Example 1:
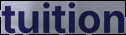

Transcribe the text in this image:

tuition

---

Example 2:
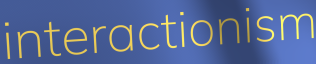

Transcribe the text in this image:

interactionism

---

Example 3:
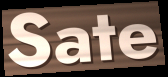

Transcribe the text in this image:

Sate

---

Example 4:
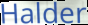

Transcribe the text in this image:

Halder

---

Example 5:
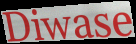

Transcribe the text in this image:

Diwase